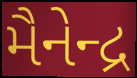
મૈનેન્દ્ર